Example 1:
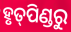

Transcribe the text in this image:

ହୃତ୍‌ପିଣ୍ଡରୁ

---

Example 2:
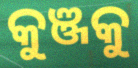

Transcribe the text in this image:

କୁଞ୍ଜକୁ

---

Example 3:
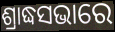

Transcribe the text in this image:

ଶ୍ରାଦ୍ଧସଭାରେ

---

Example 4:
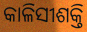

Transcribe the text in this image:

କାଳିସୀଶକ୍ତି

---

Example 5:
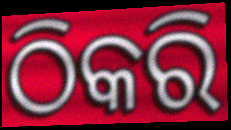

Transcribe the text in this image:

ଠିକରି